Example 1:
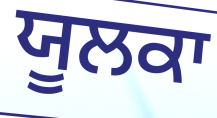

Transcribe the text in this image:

ਯੂਲਕਾ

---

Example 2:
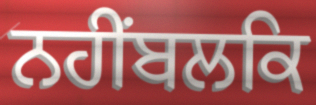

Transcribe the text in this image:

ਨਹੀਂਬਲਕਿ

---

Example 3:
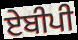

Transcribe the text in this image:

ਏਬੀਪੀ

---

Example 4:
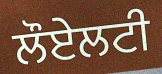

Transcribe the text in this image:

ਲੌਏਲਟੀ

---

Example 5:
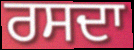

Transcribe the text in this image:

ਰਸਦਾ